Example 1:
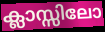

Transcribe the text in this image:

ക്ലാസ്സിലോ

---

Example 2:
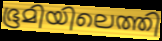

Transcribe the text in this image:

ഭൂമിയിലെത്തി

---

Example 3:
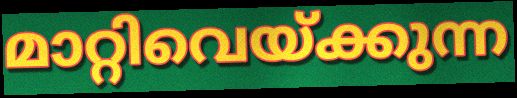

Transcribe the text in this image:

മാറ്റിവെയ്ക്കുന്ന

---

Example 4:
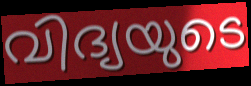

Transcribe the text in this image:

വിദ്യയുടെ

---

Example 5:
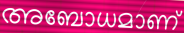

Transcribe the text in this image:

അബോധമാണ്